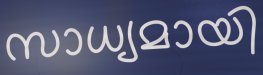
സാധ്യമായി